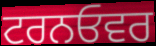
ਟਰਨਓਵਰ